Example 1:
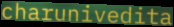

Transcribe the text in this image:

charunivedita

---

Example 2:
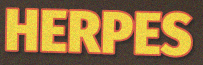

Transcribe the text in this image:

HERPES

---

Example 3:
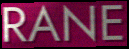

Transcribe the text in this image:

RANE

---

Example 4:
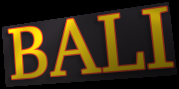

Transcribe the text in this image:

BALI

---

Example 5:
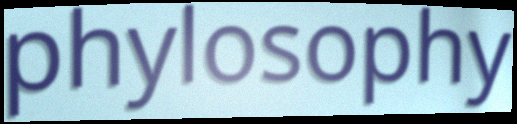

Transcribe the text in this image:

phylosophy